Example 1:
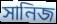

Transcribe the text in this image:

সানিজ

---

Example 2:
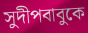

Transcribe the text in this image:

সুদীপবাবুকে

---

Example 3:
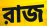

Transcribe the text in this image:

রাজ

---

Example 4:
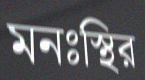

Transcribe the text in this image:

মনঃস্থির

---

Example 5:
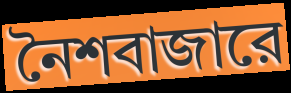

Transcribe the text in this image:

নৈশবাজারে